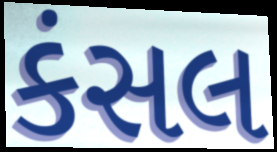
કંસલ